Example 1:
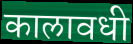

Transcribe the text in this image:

कालावधी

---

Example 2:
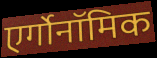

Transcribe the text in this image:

एर्गोनॉमिक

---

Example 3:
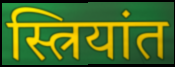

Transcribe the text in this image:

स्त्रियांत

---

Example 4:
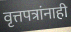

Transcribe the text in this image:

वृत्तपत्रांनाही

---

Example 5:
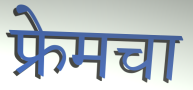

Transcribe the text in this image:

फ्रेमचा